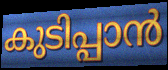
കുടിപ്പാൻ